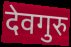
देवगुरु